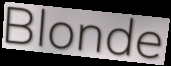
Blonde